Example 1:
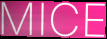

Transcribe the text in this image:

MICE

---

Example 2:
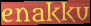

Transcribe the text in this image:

enakku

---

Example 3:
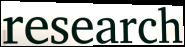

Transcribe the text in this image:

research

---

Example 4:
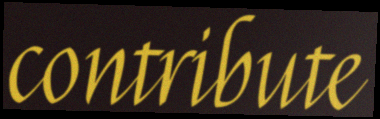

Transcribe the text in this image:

contribute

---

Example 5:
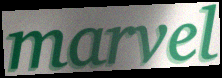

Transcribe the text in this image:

marvel